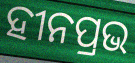
ହୀନପ୍ରଭ